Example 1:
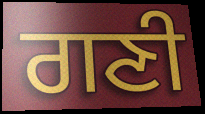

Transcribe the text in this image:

ਗਣੀ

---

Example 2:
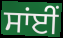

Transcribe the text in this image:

ਸਾਂਈਂ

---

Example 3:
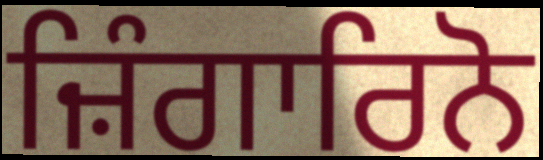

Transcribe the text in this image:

ਜ਼ਿੰਗਾਰਿਨੋ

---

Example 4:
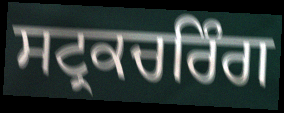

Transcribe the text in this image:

ਸਟ੍ਰਕਚਰਿੰਗ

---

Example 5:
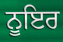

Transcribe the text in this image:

ਨੂਇਰ